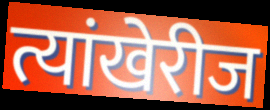
त्यांखेरीज